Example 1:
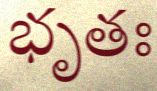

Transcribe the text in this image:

భృతః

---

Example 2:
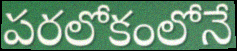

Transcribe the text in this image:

పరలోకంలోనే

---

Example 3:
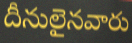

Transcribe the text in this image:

దీనులైనవారు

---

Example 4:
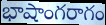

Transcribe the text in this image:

భాషాంగరాగం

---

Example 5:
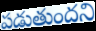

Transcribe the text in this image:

పడుతుందని